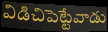
విడిచిపెట్టేవాడు